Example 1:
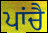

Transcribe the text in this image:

ਪਾਂਚੈ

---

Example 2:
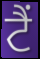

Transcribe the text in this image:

ਟੈੰ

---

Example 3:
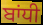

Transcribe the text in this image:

ਬਾਂਧੀ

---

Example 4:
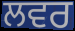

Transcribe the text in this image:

ਲਵਰ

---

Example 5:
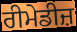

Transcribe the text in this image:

ਰੀਮੇਡੀਜ਼